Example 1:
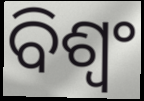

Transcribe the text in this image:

ବିଶ୍ୱଂ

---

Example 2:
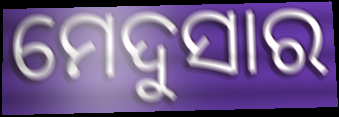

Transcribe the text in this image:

ମେଦୁସାର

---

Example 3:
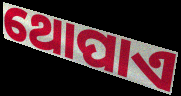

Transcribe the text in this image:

ଥୋପାଏ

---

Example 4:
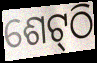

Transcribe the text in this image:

ଶେଟ୍‍ଠି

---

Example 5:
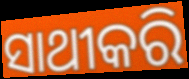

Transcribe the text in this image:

ସାଥୀକରି